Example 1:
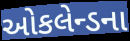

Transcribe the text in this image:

ઓકલેન્ડના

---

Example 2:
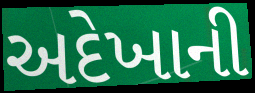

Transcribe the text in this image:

અદેખાની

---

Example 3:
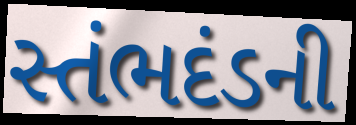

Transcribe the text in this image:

સ્તંભદંડની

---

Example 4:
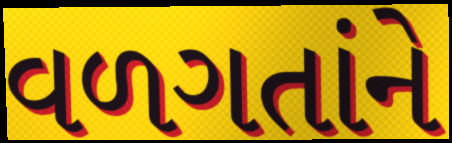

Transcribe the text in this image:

વળગતાંને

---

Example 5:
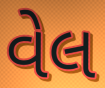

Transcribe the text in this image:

વેલ